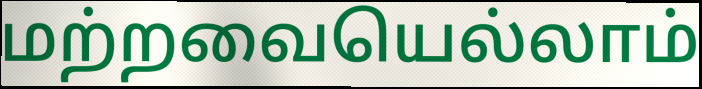
மற்றவையெல்லாம்